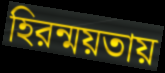
হিরন্ময়তায়